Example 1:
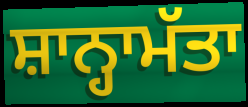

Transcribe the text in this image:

ਸ਼ਾਨ੍ਹਾਮੱਤਾ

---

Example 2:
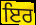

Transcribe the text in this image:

ਇਰ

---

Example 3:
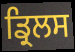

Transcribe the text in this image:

ਡ੍ਰਿਲਸ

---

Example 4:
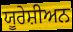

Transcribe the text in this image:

ਯੂਰੇਸ਼ੀਅਨ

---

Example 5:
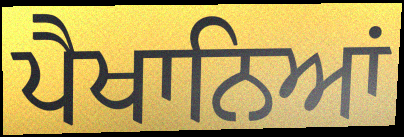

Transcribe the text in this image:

ਪੈਖਾਨਿਆਂ